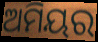
ଅମିୟର